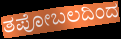
ತಪೋಬಲದಿಂದ